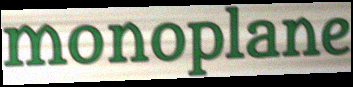
monoplane